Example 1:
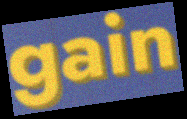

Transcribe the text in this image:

gain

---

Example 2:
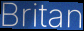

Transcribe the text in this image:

Britan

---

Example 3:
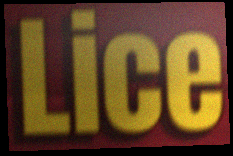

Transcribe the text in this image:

Lice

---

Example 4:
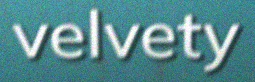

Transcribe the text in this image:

velvety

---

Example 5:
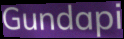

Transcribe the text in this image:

Gundapi